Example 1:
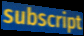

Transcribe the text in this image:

subscript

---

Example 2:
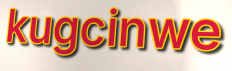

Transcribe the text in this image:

kugcinwe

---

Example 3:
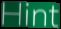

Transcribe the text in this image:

Hint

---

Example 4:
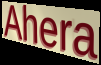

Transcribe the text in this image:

Ahera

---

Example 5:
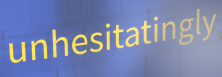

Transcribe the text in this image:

unhesitatingly